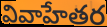
వివాహేతర